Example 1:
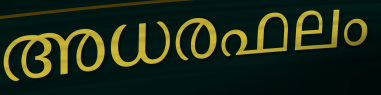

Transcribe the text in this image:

അധരഫലം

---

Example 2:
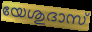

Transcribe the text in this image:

യേശുദാസ്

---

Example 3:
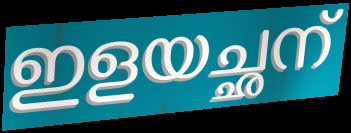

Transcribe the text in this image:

ഇളയച്ഛന്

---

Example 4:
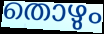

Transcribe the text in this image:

തൊഴും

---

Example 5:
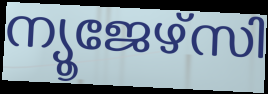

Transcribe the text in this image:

ന്യൂജേഴ്സി